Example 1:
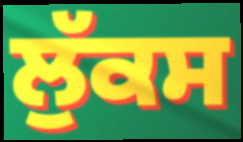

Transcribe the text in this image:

ਲੁੱਕਸ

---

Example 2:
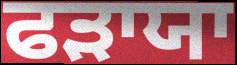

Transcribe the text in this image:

ਫੜਾਯਾ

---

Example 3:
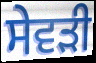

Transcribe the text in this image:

ਸੇਵੜੀ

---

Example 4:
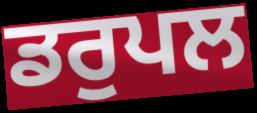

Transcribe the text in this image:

ਡਰੁਪਲ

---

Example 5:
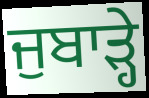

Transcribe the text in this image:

ਜੁਬਾੜ੍ਹੇ